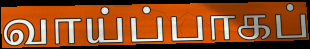
வாய்ப்பாகப்